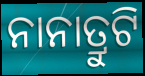
ନାନାତ୍ରୁଟି